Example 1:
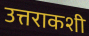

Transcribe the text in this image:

उत्तराकशी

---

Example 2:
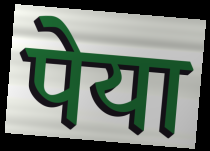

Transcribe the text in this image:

पेया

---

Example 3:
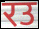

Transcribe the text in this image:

रउ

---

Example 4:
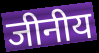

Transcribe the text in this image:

जीनीय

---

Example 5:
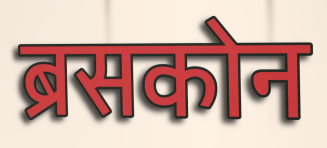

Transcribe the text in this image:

ब्रसकोन